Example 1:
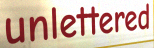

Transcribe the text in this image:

unlettered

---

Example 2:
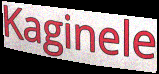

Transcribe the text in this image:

Kaginele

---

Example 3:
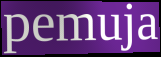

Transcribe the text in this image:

pemuja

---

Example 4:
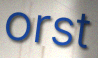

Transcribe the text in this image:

orst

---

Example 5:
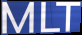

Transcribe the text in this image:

MLT